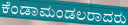
ಕೆಂಡಾಮಂಡಲರಾದರು